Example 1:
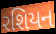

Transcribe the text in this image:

રશિયન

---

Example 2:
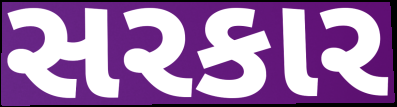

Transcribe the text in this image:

સરકાર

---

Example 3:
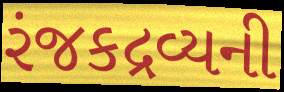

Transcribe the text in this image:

રંજકદ્રવ્યની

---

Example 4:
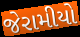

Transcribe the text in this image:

જેરામીયો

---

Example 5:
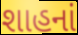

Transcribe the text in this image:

શાહનાં